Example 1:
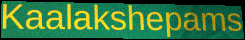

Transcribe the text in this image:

Kaalakshepams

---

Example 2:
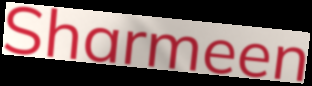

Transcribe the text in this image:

Sharmeen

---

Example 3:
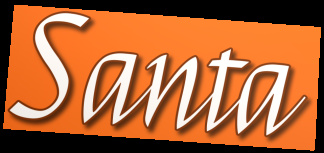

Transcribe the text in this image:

Santa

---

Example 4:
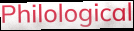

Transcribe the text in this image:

Philological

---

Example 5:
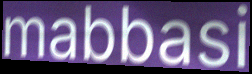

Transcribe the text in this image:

mabbasi